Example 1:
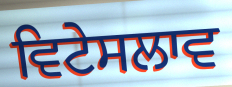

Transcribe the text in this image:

ਵਿਟੇਸਲਾਵ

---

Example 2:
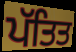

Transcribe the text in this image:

ਪੱਤਿਤ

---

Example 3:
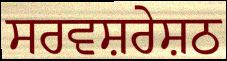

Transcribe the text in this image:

ਸਰਵਸ਼ਰੇਸ਼ਠ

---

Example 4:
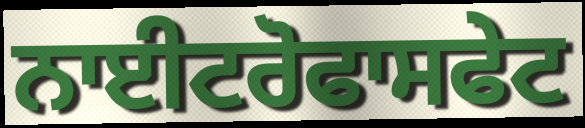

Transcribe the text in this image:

ਨਾਈਟਰੋਫਾਸਫੇਟ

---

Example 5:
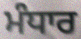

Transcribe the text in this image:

ਮੰਧਾਰ